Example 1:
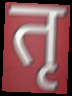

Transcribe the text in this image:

तृ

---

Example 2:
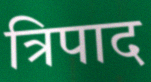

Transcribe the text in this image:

त्रिपाद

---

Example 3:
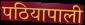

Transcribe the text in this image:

पठियापाली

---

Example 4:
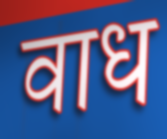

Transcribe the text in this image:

वाध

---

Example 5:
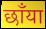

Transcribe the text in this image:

छाँया